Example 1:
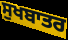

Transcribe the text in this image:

ਸੁਖਬਾਤਰ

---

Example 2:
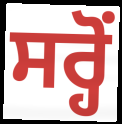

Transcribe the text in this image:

ਸਰ੍ਹੋਂ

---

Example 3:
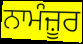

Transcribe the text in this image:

ਨਾਮੰਜ਼ੂਰ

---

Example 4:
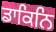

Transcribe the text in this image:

ਡਾਕਿਨਿ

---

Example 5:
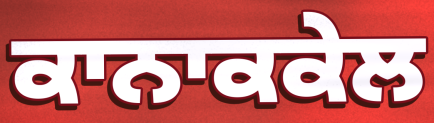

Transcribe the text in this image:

ਕਾਨਾਕਕੇਲ